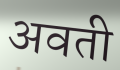
अवती